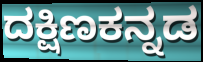
ದಕ್ಷಿಣಕನ್ನಡ